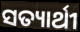
ସତ୍ୟାର୍ଥୀ